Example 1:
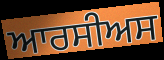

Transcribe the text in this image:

ਆਰਸੀਅਸ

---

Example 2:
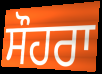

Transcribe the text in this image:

ਸੌਹਰਾ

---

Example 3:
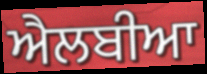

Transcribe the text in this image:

ਐਲਬੀਆ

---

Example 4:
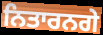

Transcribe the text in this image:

ਨਿਤਾਰਨਗੇ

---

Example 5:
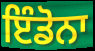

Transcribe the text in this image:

ਇੰਡੋਨਾ